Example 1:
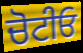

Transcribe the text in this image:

ਚੋਟੀਓ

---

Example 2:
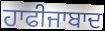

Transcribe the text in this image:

ਹਾਫੀਜਾਬਾਦ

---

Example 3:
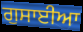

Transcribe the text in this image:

ਗੁਸਾਈਆ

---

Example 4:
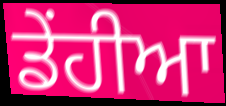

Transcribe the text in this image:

ਡੇਂਹੀਆ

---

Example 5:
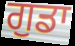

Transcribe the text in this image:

ਗੁਡਾ